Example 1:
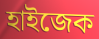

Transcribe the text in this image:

হাইজেক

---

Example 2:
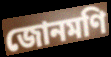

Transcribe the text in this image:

জোনমণি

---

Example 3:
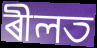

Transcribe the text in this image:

ৰীলত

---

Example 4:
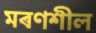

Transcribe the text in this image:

মৰণশীল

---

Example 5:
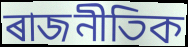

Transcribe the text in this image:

ৰাজনীতিক